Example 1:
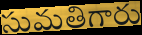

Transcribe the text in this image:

సుమతిగారు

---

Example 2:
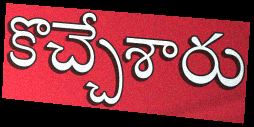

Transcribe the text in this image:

కొచ్చేశారు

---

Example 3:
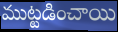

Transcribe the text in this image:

ముట్టడించాయి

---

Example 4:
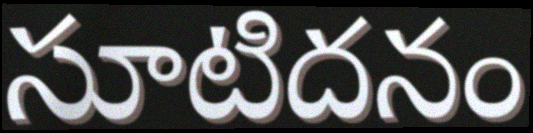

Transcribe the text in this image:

సూటిదనం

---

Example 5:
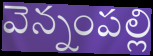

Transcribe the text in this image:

వెన్నంపల్లి